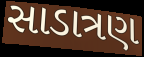
સાડાત્રણ